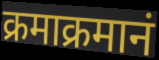
क्रमाक्रमानं